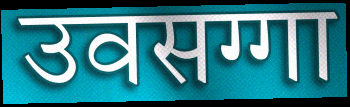
उवसग्गा